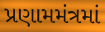
પ્રણામમંત્રમાં